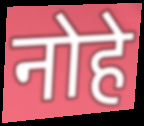
नोहे